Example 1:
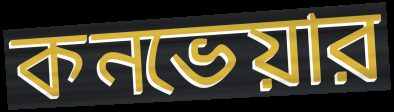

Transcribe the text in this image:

কনভেয়ার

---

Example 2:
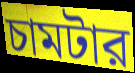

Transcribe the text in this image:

চামটার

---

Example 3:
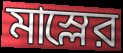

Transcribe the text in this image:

মাস্লের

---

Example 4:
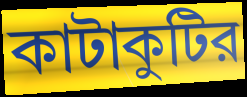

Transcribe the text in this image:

কাটাকুটির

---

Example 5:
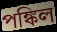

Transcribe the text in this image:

পঙ্কিল